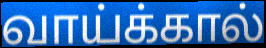
வாய்க்கால்